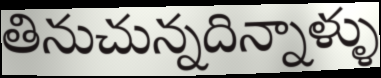
తినుచున్నదిన్నాళ్ళు